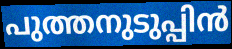
പുത്തനുടുപ്പിൻ